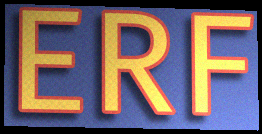
ERF